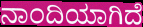
ನಾಂದಿಯಾಗಿದೆ